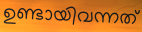
ഉണ്ടായിവന്നത്